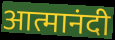
आत्मानंदी